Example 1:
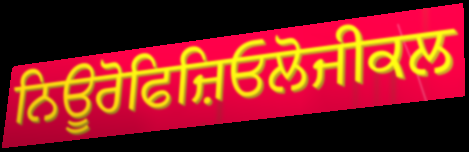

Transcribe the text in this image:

ਨਿਊਰੋਫਿਜ਼ਿਓਲੋਜੀਕਲ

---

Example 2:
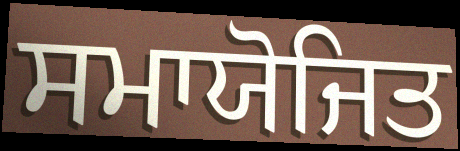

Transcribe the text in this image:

ਸਮਾਯੋਜਿਤ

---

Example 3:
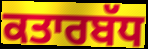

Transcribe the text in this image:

ਕਤਾਰਬੱਧ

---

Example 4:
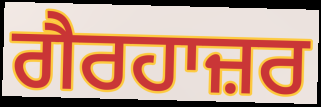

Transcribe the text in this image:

ਗੈਰਹਾਜ਼ਰ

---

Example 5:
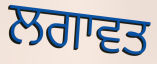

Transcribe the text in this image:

ਲਗਾਵਤ